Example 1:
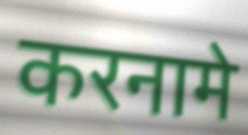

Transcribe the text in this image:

करनामे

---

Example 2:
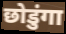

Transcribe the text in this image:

छोडुंगा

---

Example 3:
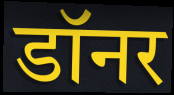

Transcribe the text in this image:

डॉनर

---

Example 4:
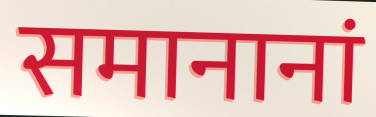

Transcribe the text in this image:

समानानां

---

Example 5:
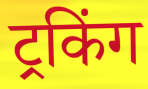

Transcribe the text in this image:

ट्रकिंग